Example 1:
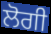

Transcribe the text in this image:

ਲੋਗੀ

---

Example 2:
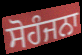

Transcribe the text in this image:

ਸੋਹੰਜਨਾ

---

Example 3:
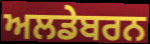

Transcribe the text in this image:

ਅਲਡੇਬਰਨ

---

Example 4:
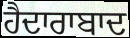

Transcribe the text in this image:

ਹੈਦਾਰਾਬਾਦ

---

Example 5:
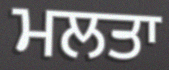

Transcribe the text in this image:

ਮਲਤਾ